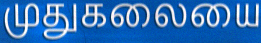
முதுகலையை